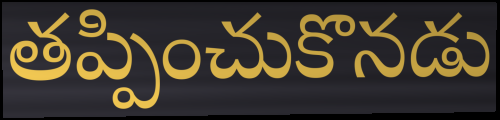
తప్పించుకొనడు